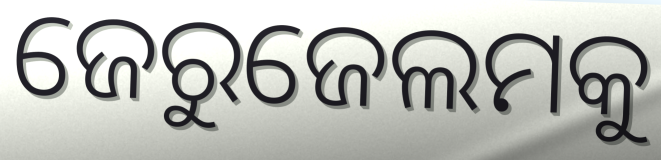
ଜେରୁଜେଲମକୁ